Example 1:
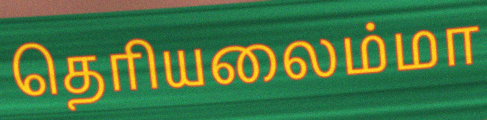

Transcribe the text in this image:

தெரியலைம்மா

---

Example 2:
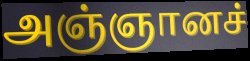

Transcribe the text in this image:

அஞ்ஞானச்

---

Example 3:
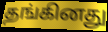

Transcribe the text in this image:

தங்கினது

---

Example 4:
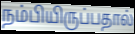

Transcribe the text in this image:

நம்பியிருப்பதால்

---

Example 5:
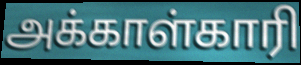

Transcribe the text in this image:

அக்காள்காரி